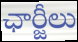
ఛార్జీలు